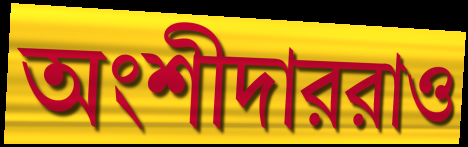
অংশীদাররাও